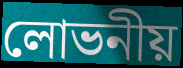
লোভনীয়